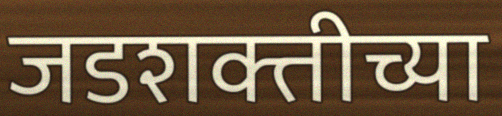
जडशक्तीच्या